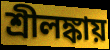
শ্রীলঙ্কায়